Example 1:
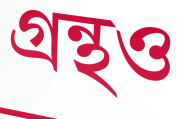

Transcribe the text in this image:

গ্ৰন্থও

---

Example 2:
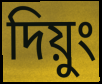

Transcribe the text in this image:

দিয়ুং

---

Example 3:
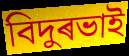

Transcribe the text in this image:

বিদুৰভাই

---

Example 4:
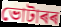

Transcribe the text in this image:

ভোটাৰৰ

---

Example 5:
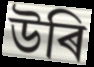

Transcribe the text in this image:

উৰি